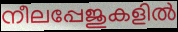
നീലപ്പേജുകളിൽ